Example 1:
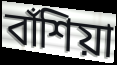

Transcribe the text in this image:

বাঁশিয়া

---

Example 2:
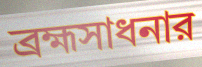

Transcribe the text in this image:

ব্রহ্মসাধনার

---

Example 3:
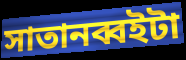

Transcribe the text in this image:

সাতানব্বইটা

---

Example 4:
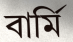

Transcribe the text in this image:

বার্মি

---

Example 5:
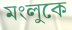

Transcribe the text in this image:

মংলুকে